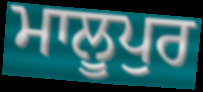
ਮਾਲੂਪੁਰ